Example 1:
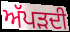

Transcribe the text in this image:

ਅੱਪੜਦੀ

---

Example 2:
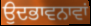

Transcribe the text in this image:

ਉਦਭਾਵਨਾਵਾਂ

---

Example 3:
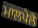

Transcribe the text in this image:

ਮਾਲਪੇਲੋ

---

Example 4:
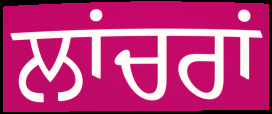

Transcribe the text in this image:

ਲਾਂਚਰਾਂ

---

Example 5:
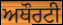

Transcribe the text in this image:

ਅਥੌਰਟੀ